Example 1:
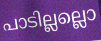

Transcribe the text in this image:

പാടില്ലല്ലൊ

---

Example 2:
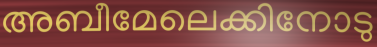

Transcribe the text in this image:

അബീമേലെക്കിനോടു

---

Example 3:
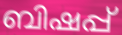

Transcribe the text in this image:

ബിഷപ്പ്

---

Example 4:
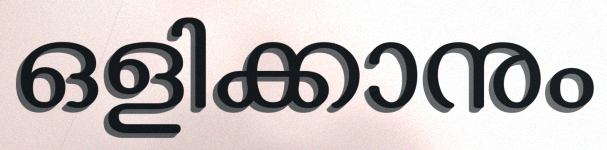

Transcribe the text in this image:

ഒളിക്കാനും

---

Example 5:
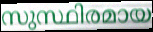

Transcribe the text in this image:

സുസ്ഥിരമായ